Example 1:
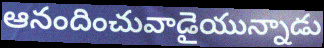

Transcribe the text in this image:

ఆనందించువాడైయున్నాడు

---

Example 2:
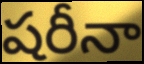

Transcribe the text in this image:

షరీనా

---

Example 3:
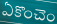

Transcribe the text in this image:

ఏకొంచెం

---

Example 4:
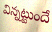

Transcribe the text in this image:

విన్నట్టుందే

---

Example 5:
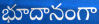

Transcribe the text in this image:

భూదానంగా